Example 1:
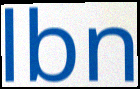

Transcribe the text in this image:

lbn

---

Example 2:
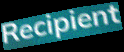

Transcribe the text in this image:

Recipient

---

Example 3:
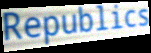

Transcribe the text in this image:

Republics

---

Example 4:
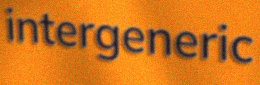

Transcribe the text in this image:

intergeneric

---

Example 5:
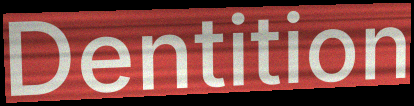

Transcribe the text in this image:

Dentition